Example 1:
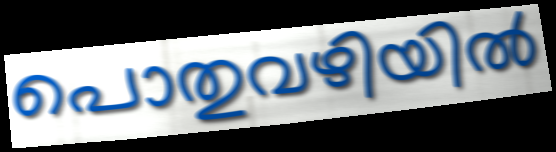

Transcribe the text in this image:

പൊതുവഴിയിൽ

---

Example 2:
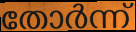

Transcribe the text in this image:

തോർന്ന്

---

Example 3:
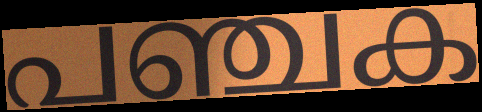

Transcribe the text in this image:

പഞ്ചക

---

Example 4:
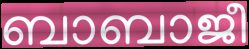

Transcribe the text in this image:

ബാബാജീ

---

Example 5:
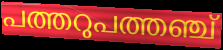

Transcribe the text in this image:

പത്തറുപത്തഞ്ച്